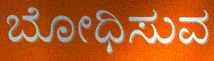
ಬೋಧಿಸುವ